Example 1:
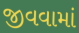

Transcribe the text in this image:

જીવવામાં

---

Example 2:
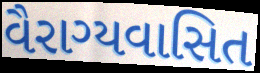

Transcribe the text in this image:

વૈરાગ્યવાસિત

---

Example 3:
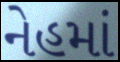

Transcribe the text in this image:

નેહમાં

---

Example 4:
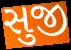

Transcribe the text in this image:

સુજી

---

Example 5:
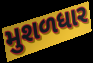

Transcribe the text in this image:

મુશળધાર